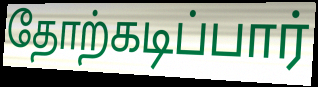
தோற்கடிப்பார்